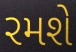
રમશે